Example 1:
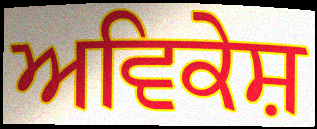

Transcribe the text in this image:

ਅਵਿਕੇਸ਼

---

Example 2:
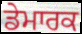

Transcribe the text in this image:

ਡੇਮਾਰਕ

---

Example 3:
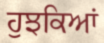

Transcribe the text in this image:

ਹੁਝਕਿਆਂ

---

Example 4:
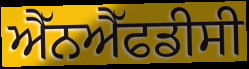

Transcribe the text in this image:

ਐੱਨਐੱਫਡੀਸੀ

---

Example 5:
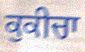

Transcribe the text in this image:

ਕੁਕੀਚਾ